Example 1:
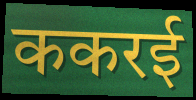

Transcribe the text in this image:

ककरई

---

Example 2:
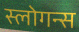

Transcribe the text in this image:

स्लोगन्स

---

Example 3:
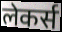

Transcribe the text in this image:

लेकर्स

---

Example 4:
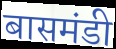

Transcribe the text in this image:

बासमंडी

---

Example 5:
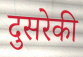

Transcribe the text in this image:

दुसरेकी